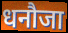
धनौजा